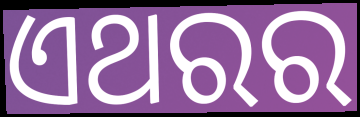
ଏଥରର